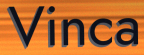
Vinca